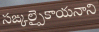
సఙ్కల్పైకాయనాని